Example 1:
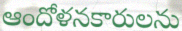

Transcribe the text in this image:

ఆందోళనకారులను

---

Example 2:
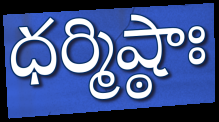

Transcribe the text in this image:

ధర్మిష్ఠాః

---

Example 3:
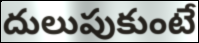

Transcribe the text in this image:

దులుపుకుంటే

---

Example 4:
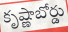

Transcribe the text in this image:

కృష్ణాబోర్డు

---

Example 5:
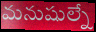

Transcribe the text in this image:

మనుషుల్నే